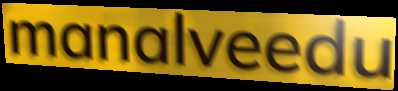
manalveedu